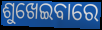
ଶୁଖେଇବାରେ